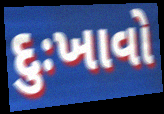
દુઃખાવો